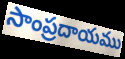
సాంప్రదాయము